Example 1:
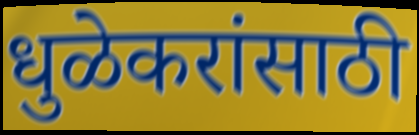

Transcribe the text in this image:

धुळेकरांसाठी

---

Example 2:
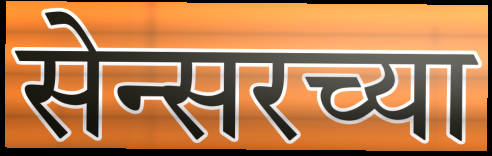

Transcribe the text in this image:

सेन्सरच्या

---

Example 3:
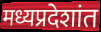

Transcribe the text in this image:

मध्यप्रदेशांत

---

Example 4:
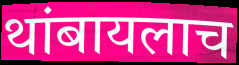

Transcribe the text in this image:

थांबायलाच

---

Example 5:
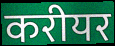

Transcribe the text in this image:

करीयर